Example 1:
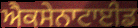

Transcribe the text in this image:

ਐਕਸੇਨਾਟਾਈਡ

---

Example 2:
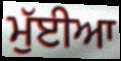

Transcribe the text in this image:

ਮੁੱਈਆ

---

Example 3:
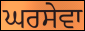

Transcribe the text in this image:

ਘਰਸੇਵਾ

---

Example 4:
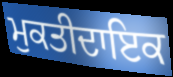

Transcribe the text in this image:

ਮੁਕਤੀਦਾਇਕ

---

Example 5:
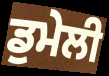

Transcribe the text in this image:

ਡੁਮੇਲੀ